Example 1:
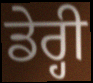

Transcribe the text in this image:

ਡੇਰ੍ਹੀ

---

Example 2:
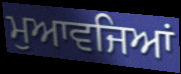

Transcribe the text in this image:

ਮੁਆਵਜਿਆਂ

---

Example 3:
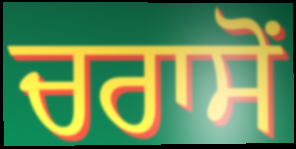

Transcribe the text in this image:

ਚਰਾਸੋਂ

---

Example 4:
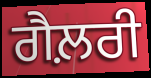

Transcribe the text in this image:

ਗੈਲ਼ਰੀ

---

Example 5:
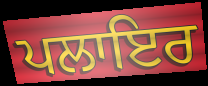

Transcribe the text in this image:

ਪਲਾਇਰ